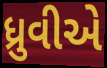
ધ્રુવીએ